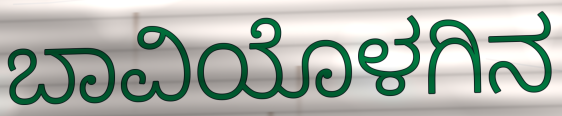
ಬಾವಿಯೊಳಗಿನ